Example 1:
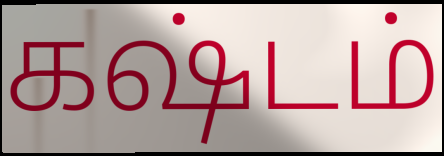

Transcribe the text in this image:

கஷ்டம்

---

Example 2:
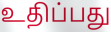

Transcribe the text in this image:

உதிப்பது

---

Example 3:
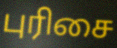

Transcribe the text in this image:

புரிசை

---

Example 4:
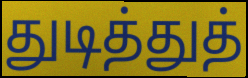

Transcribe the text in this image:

துடித்துத்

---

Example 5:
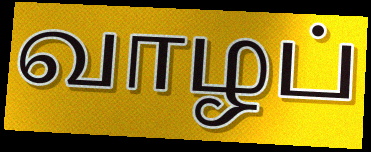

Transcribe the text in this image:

வாழப்